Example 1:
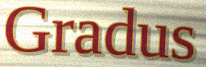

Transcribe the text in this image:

Gradus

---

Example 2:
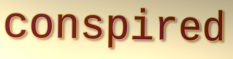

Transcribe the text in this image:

conspired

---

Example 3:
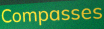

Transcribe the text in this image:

Compasses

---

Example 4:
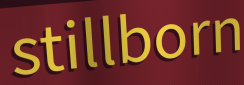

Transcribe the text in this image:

stillborn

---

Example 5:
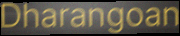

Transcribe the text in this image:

Dharangoan